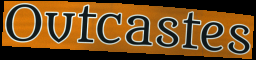
Outcastes